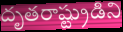
దృతరాష్ట్రుడిని